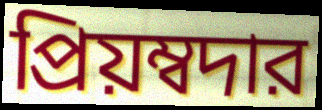
প্রিয়ম্বদার